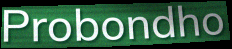
Probondho